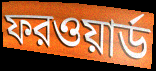
ফরওয়ার্ড